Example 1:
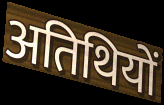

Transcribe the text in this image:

अतिथियों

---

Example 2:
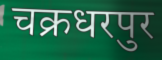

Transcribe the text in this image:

चक्रधरपुर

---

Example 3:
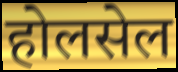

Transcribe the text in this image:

होलसेल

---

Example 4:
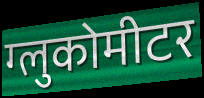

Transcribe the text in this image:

ग्लुकोमीटर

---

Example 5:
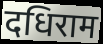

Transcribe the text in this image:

दधिराम